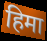
हिमा